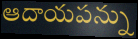
ఆదాయపన్ను